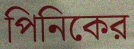
পিনিকের